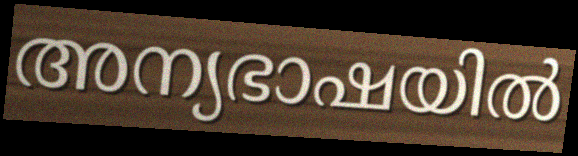
അന്യഭാഷയിൽ